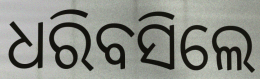
ଧରିବସିଲେ